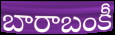
బారాబంకీ